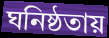
ঘনিষ্ঠতায়